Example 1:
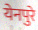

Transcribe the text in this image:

येनपुरे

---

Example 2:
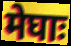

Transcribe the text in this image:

मेघाः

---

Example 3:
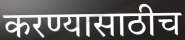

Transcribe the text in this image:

करण्यासाठीच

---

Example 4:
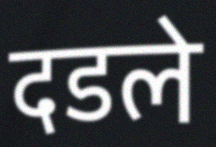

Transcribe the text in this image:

दडले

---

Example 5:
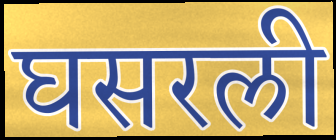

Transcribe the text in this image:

घसरली